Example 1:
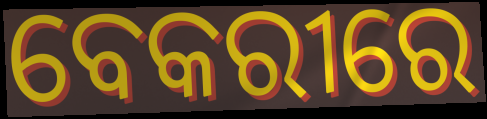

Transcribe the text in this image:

ବେକରୀରେ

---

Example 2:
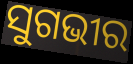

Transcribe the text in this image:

ସୁଗଭୀର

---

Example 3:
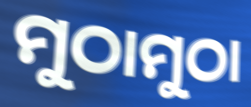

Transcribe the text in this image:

ମୁଠାମୁଠା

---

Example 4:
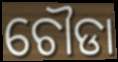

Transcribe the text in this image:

ଚୌଡା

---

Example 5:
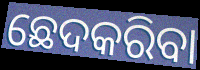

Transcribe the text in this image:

ଛେଦକରିବା